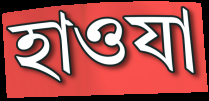
হাওযা